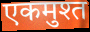
एकमुश्‍त